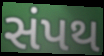
સંપથ